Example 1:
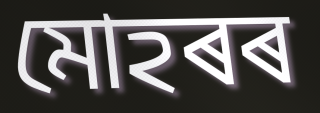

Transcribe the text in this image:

মোহৰৰ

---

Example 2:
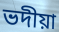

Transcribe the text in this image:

ভদীয়া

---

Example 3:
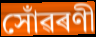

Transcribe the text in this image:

সোঁৱৰণী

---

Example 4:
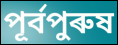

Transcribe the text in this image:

পূৰ্বপুৰুষ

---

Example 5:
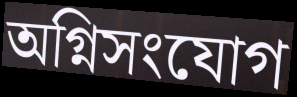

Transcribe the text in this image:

অগ্নিসংযোগ